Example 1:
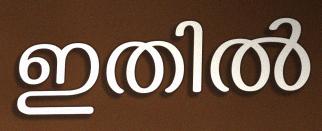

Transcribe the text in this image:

ഇതിൽ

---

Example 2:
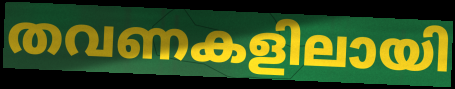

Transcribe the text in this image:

തവണകളിലായി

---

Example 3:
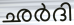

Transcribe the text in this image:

ഛർദി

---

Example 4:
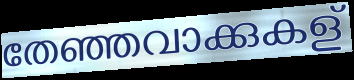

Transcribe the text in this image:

തേഞ്ഞവാക്കുകള്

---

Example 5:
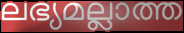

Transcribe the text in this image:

ലഭ്യമല്ലാത്ത